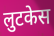
लुटकेस